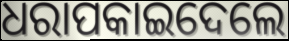
ଧରାପକାଇଦେଲେ